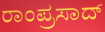
ರಾಂಪ್ರಸಾದ್